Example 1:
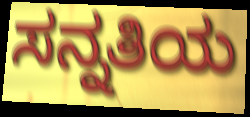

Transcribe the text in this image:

ಸನ್ನತಿಯ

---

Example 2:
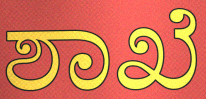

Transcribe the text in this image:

ಶಾಖೆ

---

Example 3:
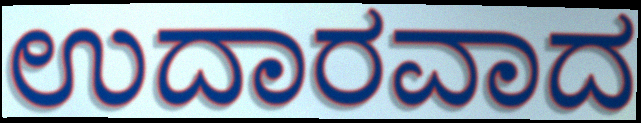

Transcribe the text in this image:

ಉದಾರವಾದ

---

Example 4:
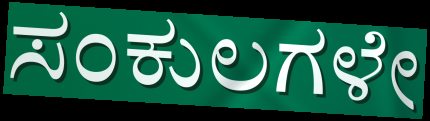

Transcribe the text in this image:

ಸಂಕುಲಗಳೇ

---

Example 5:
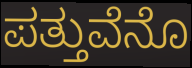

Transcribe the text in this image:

ಪತ್ತುವೆನೊ